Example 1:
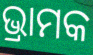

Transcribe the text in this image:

ଭ୍ରାମକ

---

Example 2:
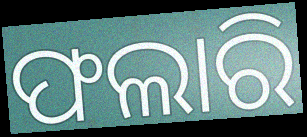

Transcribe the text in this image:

ଫଲାରି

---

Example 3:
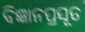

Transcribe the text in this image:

ବିଜ୍ଞାନପ୍ରସୂତ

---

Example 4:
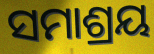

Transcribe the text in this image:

ସମାଶ୍ରୟ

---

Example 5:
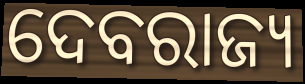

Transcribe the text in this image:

ଦେବରାଜ୍ୟ